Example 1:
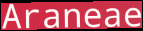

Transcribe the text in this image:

Araneae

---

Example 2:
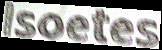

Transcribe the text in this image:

Isoetes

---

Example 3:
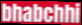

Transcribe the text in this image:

bhabchhi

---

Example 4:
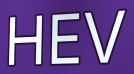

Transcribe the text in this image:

HEV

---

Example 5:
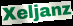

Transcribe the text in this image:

Xeljanz